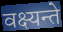
वक्ष्यन्ते